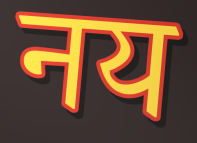
नय